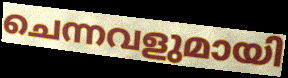
ചെന്നവളുമായി